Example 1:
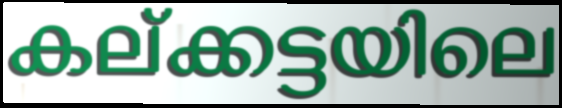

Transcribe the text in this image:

കല്ക്കട്ടയിലെ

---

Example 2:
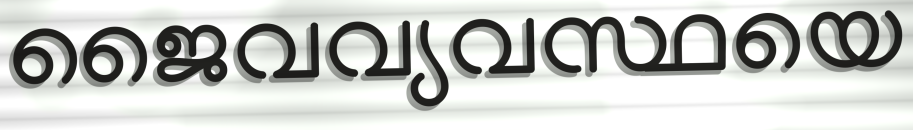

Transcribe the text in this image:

ജൈവവ്യവസ്ഥയെ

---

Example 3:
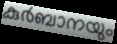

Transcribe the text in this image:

കുർബാനയും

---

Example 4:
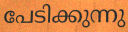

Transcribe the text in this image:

പേടിക്കുന്നു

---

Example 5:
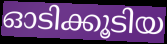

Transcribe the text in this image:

ഓടിക്കൂടിയ